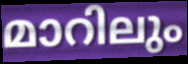
മാറിലും